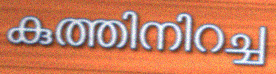
കുത്തിനിറച്ച